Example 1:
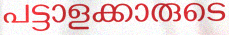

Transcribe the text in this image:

പട്ടാളക്കാരുടെ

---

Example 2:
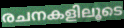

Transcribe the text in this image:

രചനകളിലൂടെ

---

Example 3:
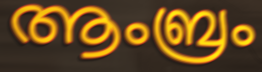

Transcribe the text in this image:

ആംബ്രം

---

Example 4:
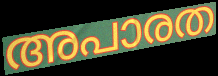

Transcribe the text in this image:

അപാരത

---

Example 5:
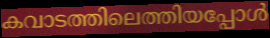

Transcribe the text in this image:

കവാടത്തിലെത്തിയപ്പോൾ